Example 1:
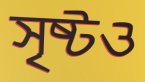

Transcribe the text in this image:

সৃষ্টও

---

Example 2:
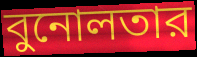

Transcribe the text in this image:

বুনোলতার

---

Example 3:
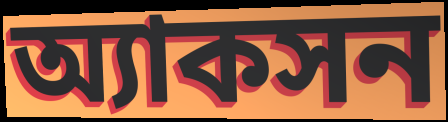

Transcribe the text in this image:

অ্যাকসন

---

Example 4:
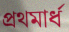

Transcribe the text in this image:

প্রথমার্ধ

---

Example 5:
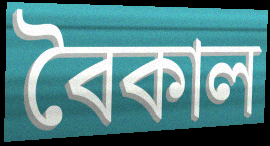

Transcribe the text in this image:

বৈকাল